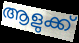
ആളുക്ക്